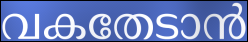
വകതേടാൻ